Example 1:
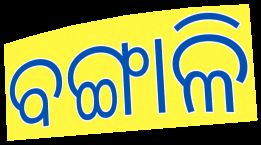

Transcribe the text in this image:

ବଙ୍ଗାଳି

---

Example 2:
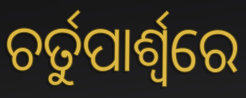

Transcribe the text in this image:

ଚର୍ତୁପାର୍ଶ୍ବରେ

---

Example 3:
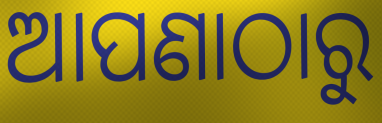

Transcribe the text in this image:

ଆପଣାଠାରୁ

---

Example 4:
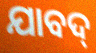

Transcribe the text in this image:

ଯାବଦ୍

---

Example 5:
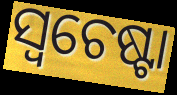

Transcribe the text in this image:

ସ୍ଵଚେଷ୍ଟା